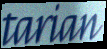
tarian